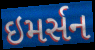
ઇમર્સન